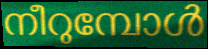
നീറുമ്പോൾ